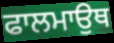
ਫਾਲਮਾਉਥ